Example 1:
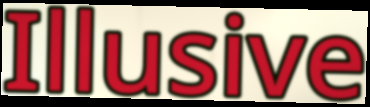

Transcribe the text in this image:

Illusive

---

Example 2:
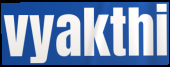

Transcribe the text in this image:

vyakthi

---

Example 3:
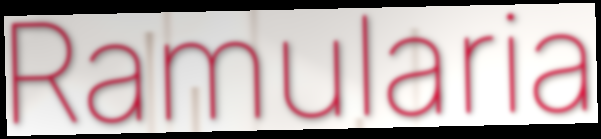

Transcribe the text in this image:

Ramularia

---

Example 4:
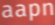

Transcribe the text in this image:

aapn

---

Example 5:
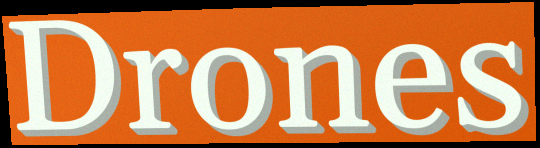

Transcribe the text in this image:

Drones